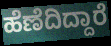
ಹೆಣೆದಿದ್ದಾರೆ